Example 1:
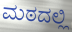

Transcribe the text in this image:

ಮಠದಲ್ಲಿ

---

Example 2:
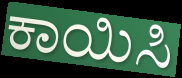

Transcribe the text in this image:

ಕಾಯಿಸಿ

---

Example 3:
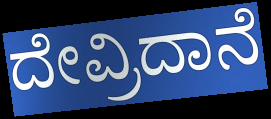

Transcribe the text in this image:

ದೇವ್ರಿದಾನೆ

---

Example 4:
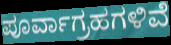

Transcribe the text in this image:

ಪೂರ್ವಾಗ್ರಹಗಳಿವೆ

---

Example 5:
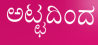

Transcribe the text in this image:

ಅಟ್ಟದಿಂದ